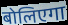
बोलिएगा